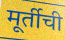
मूर्तीची